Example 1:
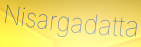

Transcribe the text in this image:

Nisargadatta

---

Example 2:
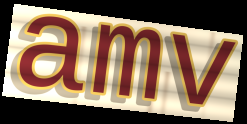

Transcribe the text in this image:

amv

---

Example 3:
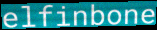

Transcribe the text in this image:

elfinbone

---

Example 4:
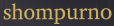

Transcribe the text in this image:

shompurno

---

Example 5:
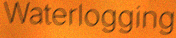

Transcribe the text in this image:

Waterlogging